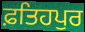
ਫ਼ਤਿਹਪੁਰ